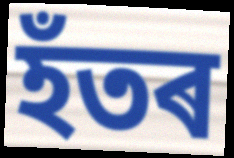
হঁতৰ